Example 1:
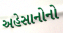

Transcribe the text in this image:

અહેસાનોનો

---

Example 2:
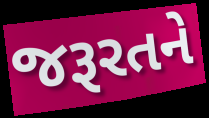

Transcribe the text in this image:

જરૂરતને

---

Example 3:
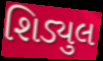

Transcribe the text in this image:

શિડ્યુલ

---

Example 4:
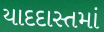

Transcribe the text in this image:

યાદદાસ્તમાં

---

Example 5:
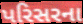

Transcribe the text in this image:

પરિસરના